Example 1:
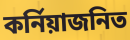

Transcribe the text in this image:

কর্নিয়াজনিত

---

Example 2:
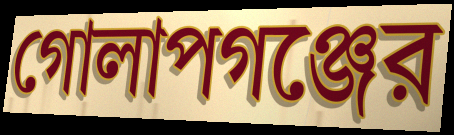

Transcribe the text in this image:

গোলাপগঞ্জের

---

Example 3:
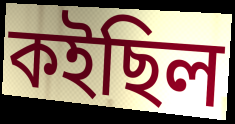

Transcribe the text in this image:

কইছিল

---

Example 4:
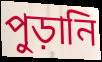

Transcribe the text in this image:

পুড়ানি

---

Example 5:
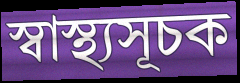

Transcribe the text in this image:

স্বাস্থ্যসূচক